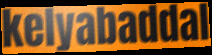
kelyabaddal